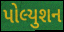
પોલ્યુશન